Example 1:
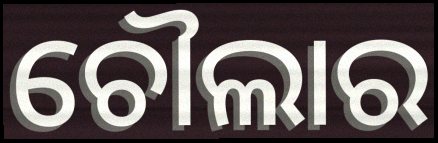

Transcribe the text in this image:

ଚୌଲାର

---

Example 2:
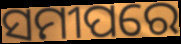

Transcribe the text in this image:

ସମୀପରେ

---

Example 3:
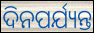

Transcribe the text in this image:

ଦିନପର୍ଯ୍ୟନ୍ତ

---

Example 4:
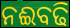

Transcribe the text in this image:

ନଈବଢି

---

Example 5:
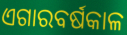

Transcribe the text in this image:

ଏଗାରବର୍ଷକାଳ